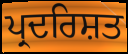
ਪ੍ਰਦਰਿਸ਼ਤ